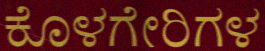
ಕೊಳಗೇರಿಗಳ